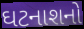
ઘટનાશનો